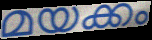
മയക്കം